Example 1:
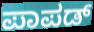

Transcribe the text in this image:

ಪಾಪಡ್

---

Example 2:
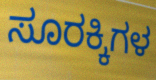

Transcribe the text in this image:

ಸೂರಕ್ಕಿಗಳ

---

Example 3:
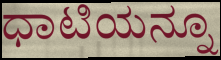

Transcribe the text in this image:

ಧಾಟಿಯನ್ನೂ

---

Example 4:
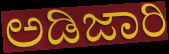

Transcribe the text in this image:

ಅಡಿಜಾರಿ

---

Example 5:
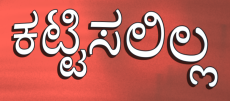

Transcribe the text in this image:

ಕಟ್ಟಿಸಲಿಲ್ಲ